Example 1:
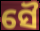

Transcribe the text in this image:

ସୈ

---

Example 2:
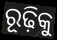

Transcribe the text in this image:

ରୂଢ଼ିକୁ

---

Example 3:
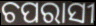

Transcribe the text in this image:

ଚପରାସୀ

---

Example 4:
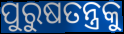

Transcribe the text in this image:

ପୁରୁଷତନ୍ତ୍ରକୁ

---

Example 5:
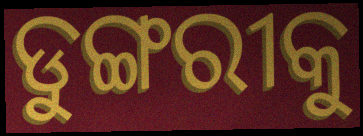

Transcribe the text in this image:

ଡୁଙ୍ଗରୀକୁ